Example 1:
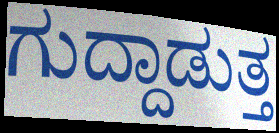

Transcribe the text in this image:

ಗುದ್ದಾಡುತ್ತ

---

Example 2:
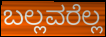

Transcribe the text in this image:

ಬಲ್ಲವರೆಲ್ಲ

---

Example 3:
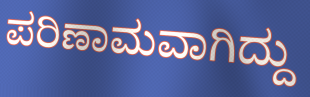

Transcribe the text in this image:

ಪರಿಣಾಮವಾಗಿದ್ದು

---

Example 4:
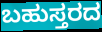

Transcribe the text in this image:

ಬಹುಸ್ತರದ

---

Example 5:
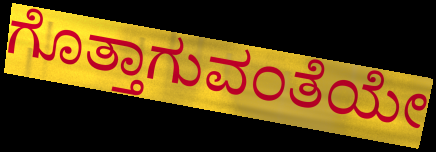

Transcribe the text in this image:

ಗೊತ್ತಾಗುವಂತೆಯೇ